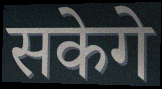
सकेगे